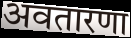
अवतारणा